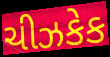
ચીઝકેક